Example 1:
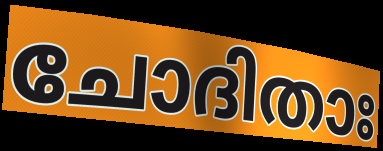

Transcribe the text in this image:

ചോദിതാഃ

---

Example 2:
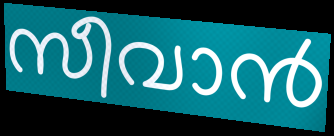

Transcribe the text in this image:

സീവാൻ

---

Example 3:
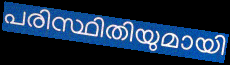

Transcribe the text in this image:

പരിസ്ഥിതിയുമായി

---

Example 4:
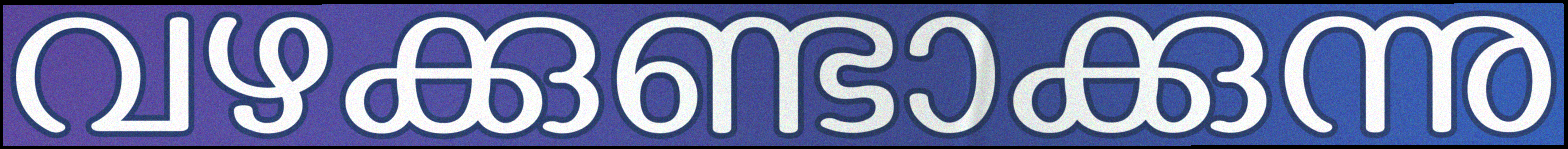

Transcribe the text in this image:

വഴക്കുണ്ടാക്കുന്നു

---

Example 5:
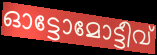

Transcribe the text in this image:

ഓട്ടോമോട്ടീവ്